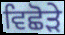
ਵਿਛੋੜੇ